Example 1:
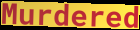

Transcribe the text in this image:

Murdered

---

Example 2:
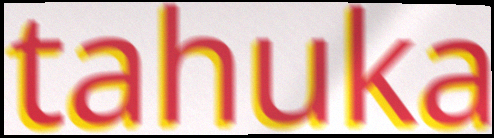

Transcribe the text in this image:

tahuka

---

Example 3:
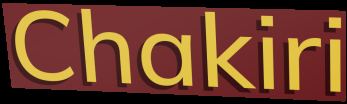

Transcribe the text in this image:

Chakiri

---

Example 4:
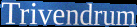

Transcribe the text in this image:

Trivendrum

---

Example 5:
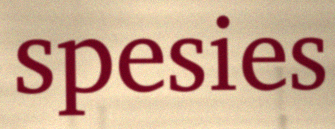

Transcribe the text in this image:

spesies